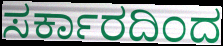
ಸರ್ಕಾರದಿಂದ